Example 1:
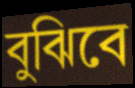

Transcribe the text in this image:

বুঝিবে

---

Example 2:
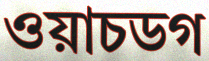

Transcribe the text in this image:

ওয়াচডগ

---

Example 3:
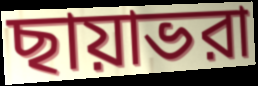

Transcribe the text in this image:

ছায়াভরা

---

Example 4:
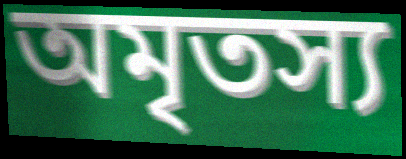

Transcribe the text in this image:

অমৃতস্য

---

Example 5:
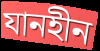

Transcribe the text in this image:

যানহীন